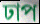
ঢাপ